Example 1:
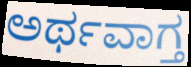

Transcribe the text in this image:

ಅರ್ಥವಾಗ್ತ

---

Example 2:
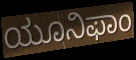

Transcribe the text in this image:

ಯೂನಿಫಾಂ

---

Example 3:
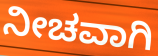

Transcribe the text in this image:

ನೀಚವಾಗಿ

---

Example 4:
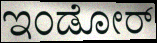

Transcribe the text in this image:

ಇಂಡೋರ್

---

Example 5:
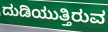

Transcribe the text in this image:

ದುಡಿಯುತ್ತಿರುವ